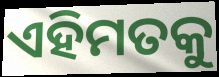
ଏହିମତକୁ